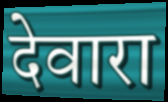
देवारा